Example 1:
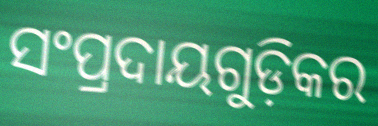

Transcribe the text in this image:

ସଂପ୍ରଦାୟଗୁଡ଼ିକର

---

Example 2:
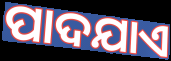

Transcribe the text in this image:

ପାଦଯାଏ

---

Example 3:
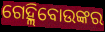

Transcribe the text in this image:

ଗେହ୍ଲିବୋଉଙ୍କର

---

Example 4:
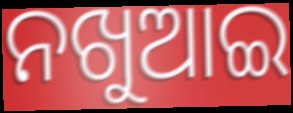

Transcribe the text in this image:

ନଖୁଆଇ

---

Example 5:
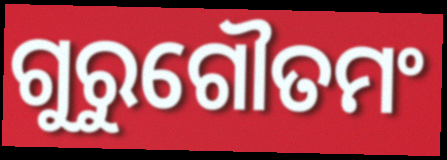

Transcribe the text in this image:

ଗୁରୁଗୌତମଂ